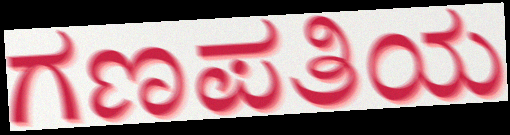
ಗಣಪತಿಯ